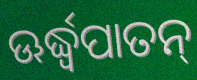
ଊର୍ଦ୍ଧ୍ବପାତନ୍